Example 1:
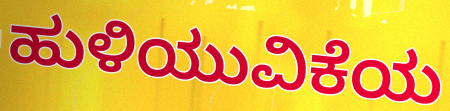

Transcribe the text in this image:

ಹುಳಿಯುವಿಕೆಯ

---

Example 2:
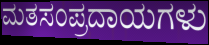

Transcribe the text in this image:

ಮತಸಂಪ್ರದಾಯಗಳು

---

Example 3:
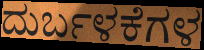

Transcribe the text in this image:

ದುರ್ಬಳಕೆಗಳ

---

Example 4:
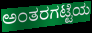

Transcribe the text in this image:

ಅಂತರಗಟ್ಟೆಯ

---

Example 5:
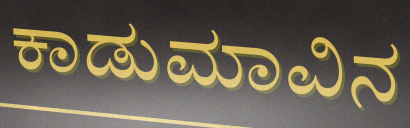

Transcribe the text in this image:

ಕಾಡುಮಾವಿನ